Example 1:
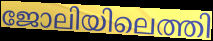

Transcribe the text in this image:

ജോലിയിലെത്തി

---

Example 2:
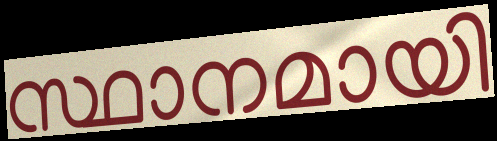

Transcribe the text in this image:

സ്ഥാനമായി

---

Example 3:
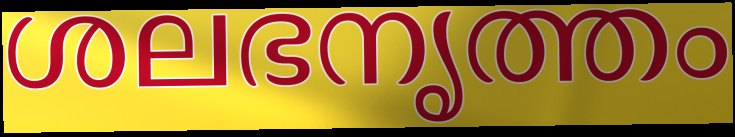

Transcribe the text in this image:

ശലഭനൃത്തം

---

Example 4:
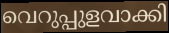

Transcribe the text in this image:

വെറുപ്പുളവാക്കി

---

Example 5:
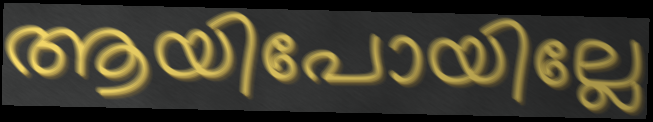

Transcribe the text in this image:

ആയിപോയില്ലേ